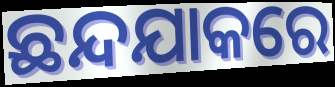
ଛନ୍ଦଯାକରେ